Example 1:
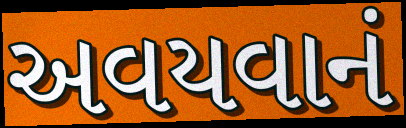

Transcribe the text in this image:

અવયવાનં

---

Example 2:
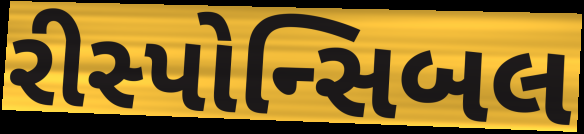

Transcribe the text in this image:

રીસ્પોન્સિબલ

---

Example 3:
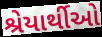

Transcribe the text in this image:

શ્રેયાર્થીઓ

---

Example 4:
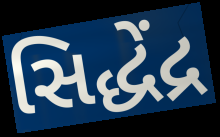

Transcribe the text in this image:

સિદ્ધેંદ્ર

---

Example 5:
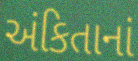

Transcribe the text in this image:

અંકિતાનાં